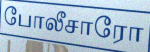
போலீசாரோ